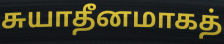
சுயாதீனமாகத்